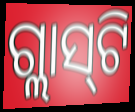
ଗ୍ଲାସ୍‍ଟି